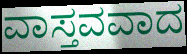
ವಾಸ್ತವವಾದ